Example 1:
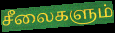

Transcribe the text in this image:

சீலைகளும்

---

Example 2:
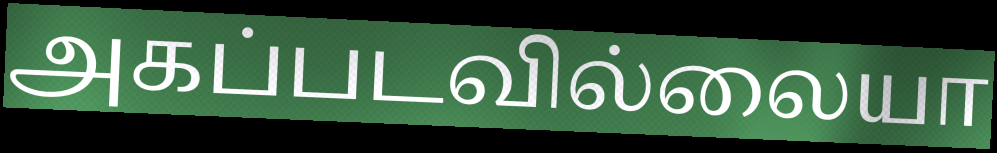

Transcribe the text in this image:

அகப்படவில்லையா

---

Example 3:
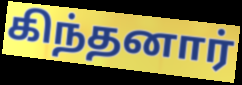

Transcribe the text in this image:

கிந்தனார்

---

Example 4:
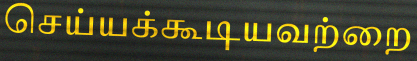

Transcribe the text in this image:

செய்யக்கூடியவற்றை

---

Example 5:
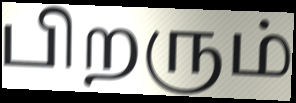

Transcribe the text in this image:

பிறரும்